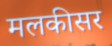
मलकीसर